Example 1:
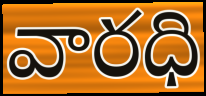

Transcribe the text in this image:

వారధి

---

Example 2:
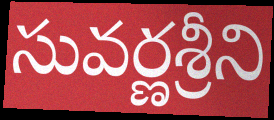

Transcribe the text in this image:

సువర్ణశ్రీని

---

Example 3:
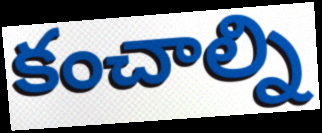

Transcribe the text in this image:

కంచాల్ని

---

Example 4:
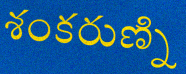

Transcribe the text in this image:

శంకరుణ్ని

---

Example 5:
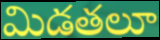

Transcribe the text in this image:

మిడతలూ